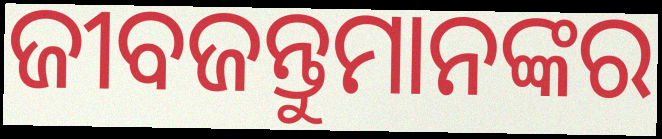
ଜୀବଜନ୍ତୁମାନଙ୍କର